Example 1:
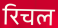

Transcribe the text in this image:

रिचल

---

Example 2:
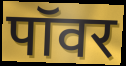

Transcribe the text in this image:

पॉवर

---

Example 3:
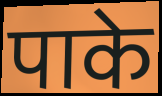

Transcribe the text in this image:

पाके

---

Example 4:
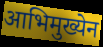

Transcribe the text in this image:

आभिमुख्येन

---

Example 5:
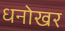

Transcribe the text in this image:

धनोखर